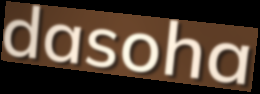
dasoha